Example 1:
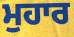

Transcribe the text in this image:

ਮੁਹਾਰ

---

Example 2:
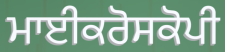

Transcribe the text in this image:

ਮਾਈਕਰੋਸਕੋਪੀ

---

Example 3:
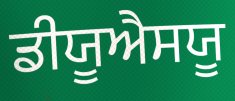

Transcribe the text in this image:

ਡੀਯੂਐਸਯੂ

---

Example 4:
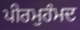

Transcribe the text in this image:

ਪੀਰਮੁਹੰਮਦ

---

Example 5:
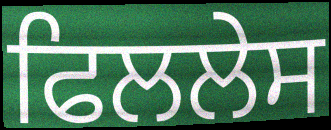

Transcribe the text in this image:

ਫਿਲਲੇਸ